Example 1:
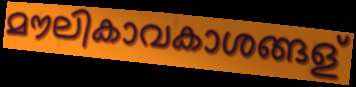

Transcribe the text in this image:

മൗലികാവകാശങ്ങള്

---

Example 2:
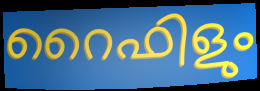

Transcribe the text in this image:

റൈഫിളും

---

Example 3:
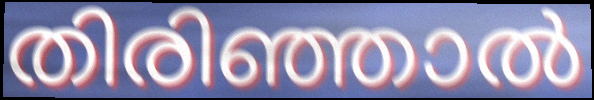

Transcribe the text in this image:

തിരിഞ്ഞാൽ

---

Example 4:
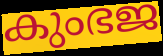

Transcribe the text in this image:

കുംഭജ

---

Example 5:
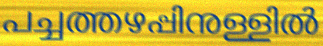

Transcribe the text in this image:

പച്ചത്തഴപ്പിനുള്ളിൽ